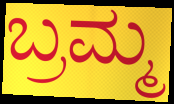
ಬ್ರಮ್ಮ